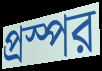
প্রস্পর